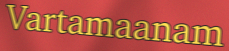
Vartamaanam